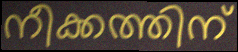
നീക്കത്തിന്